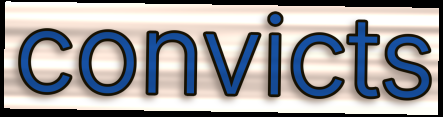
convicts